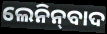
ଲେନିନ୍‌ବାଦ